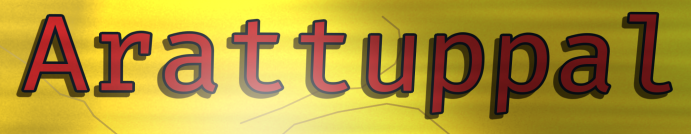
Arattuppal